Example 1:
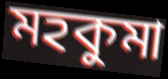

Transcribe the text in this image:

মহকুমা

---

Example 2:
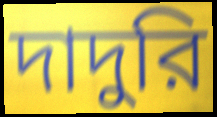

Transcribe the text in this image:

দাদুরি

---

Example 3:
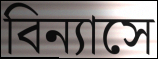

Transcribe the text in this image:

বিন্যাসে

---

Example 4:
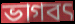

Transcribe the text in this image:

ভাগবৎ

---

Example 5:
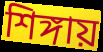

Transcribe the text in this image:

শিঙ্গায়